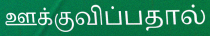
ஊக்குவிப்பதால்